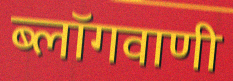
ब्लॉगवाणी